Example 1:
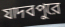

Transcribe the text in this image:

যাদবপুরে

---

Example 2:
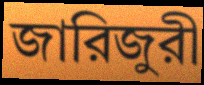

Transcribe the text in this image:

জারিজুরী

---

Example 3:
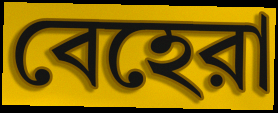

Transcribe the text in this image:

বেহেরা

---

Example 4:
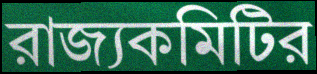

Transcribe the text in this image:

রাজ্যকমিটির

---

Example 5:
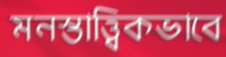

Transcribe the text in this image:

মনস্তাত্ত্বিকভাবে